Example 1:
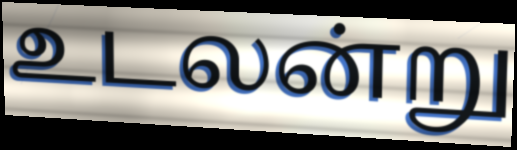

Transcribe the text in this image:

உடலன்று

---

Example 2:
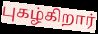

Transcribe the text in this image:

புகழ்கிறார்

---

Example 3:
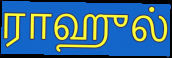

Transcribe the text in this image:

ராஹுல்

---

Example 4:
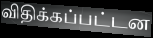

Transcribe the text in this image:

விதிக்கப்பட்டன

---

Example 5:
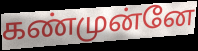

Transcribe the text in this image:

கண்முன்னே